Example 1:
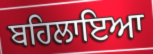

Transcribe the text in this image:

ਬਹਿਲਾਇਆ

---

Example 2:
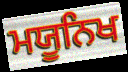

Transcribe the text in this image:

ਮਯੂਨਿਖ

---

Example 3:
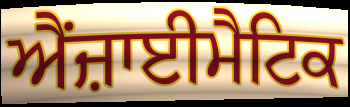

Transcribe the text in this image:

ਐਂਜ਼ਾਈਮੈਟਿਕ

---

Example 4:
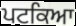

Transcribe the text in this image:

ਪਟਕਿਆ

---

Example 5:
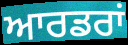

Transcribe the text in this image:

ਆਰਡਰਾਂ